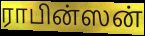
ராபின்ஸன்